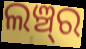
ଲଞ୍ଚ୍‍ର